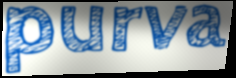
purva